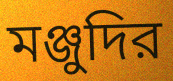
মঞ্জুদির